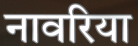
नावरिया